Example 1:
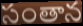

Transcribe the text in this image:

సంతాన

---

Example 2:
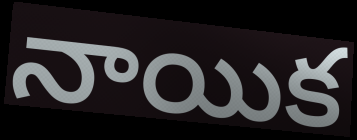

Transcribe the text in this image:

నాయిక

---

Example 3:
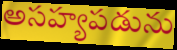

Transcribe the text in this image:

అసహ్యపడును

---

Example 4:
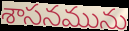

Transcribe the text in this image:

శాసనమును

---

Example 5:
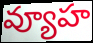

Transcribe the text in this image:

వ్యూహ